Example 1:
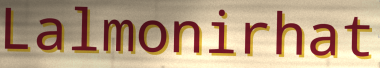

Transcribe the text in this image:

Lalmonirhat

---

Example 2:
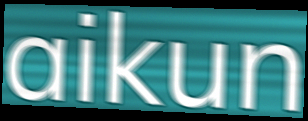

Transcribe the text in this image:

aikun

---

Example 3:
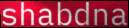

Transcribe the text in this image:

shabdna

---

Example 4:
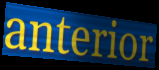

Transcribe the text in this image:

anterior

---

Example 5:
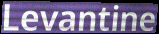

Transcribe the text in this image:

Levantine